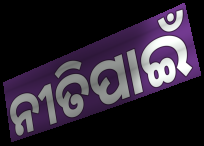
ନୀତିପାଇଁ